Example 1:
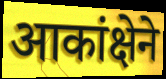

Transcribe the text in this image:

आकांक्षेने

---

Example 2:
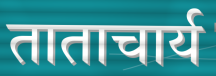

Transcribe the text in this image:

ताताचार्य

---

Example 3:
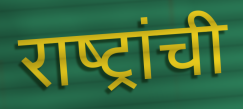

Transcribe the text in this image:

राष्ट्रांची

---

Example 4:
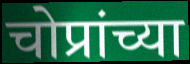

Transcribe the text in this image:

चोप्रांच्या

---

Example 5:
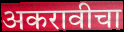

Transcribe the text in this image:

अकरावीचा